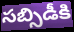
సబ్సిడీకి